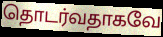
தொடர்வதாகவே